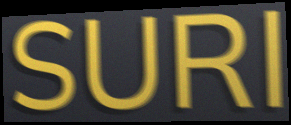
SURI